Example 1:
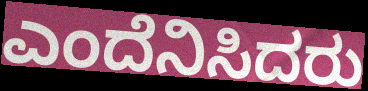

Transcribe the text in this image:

ಎಂದೆನಿಸಿದರು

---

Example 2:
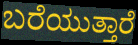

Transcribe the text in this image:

ಬರೆಯುತ್ತಾರೆ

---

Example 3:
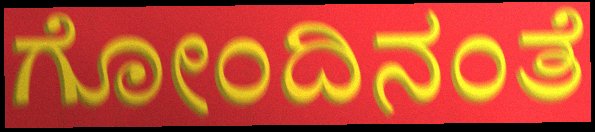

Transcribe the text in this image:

ಗೋಂದಿನಂತೆ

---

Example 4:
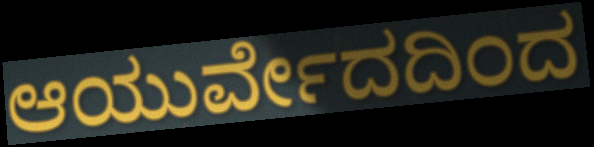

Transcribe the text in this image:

ಆಯುರ್ವೇದದಿಂದ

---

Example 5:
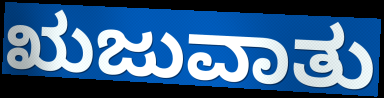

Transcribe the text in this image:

ಋಜುವಾತು